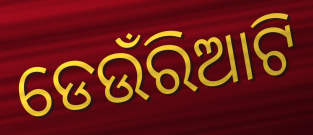
ଡେଉଁରିଆଟି